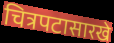
चित्रपटासारखे